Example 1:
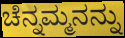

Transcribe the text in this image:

ಚೆನ್ನಮ್ಮನನ್ನು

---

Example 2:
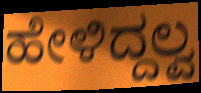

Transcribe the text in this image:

ಹೇಳಿದ್ದಲ್ವ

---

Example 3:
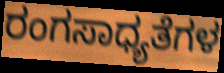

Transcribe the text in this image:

ರಂಗಸಾಧ್ಯತೆಗಳ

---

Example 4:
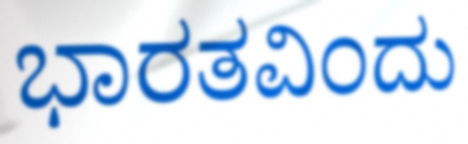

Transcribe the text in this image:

ಭಾರತವಿಂದು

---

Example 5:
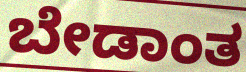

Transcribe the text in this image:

ಬೇಡಾಂತ